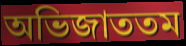
অভিজাততম